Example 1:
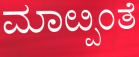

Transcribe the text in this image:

ಮಾೞ್ಪಂತೆ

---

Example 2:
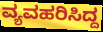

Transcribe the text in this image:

ವ್ಯವಹರಿಸಿದ್ದ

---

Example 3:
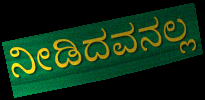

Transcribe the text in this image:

ನೀಡಿದವನಲ್ಲ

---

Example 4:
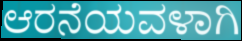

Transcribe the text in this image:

ಆರನೆಯವಳಾಗಿ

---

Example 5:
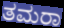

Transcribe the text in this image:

ತಮರಾ